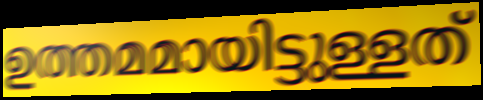
ഉത്തമമായിട്ടുള്ളത്